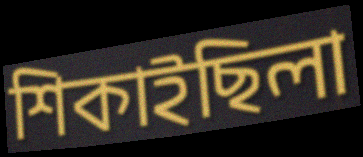
শিকাইছিলা